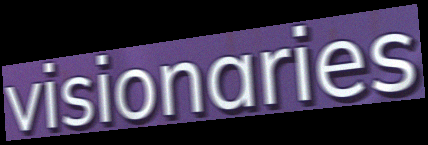
visionaries